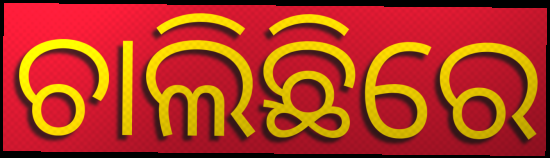
ଚାଲିଛିରେ